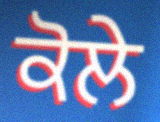
ਕੋਲੇ